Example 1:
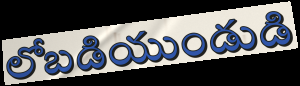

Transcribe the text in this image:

లోబడియుండుడి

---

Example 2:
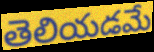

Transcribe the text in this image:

తెలియడమే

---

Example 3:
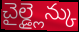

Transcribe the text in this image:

చైల్డ్లైన్కు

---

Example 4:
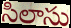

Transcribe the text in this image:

సిలాసు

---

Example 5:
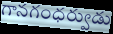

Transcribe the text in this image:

గానగంధర్వుడు